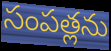
సంపత్లను